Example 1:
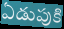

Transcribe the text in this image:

ఏడుపుకి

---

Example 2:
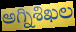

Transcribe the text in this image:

అగ్నిశిఖల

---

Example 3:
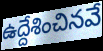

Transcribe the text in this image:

ఉద్దేశించినవే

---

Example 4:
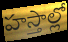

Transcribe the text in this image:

హస్తాల్లో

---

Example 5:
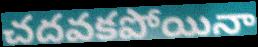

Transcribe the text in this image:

చదవకపోయినా